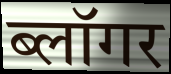
ब्लॉगर